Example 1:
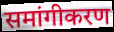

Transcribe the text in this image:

समांगीकरण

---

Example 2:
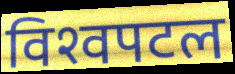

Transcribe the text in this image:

विश्वपटल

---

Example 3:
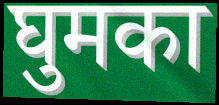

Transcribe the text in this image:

घुमका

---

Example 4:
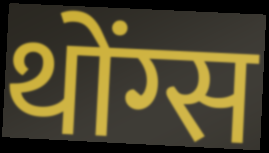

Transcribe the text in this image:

थोंग्स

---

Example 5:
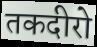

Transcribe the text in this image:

तकदीरो